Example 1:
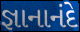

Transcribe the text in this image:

જ્ઞાનાનંદે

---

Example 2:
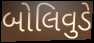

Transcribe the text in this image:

બોલિવુડે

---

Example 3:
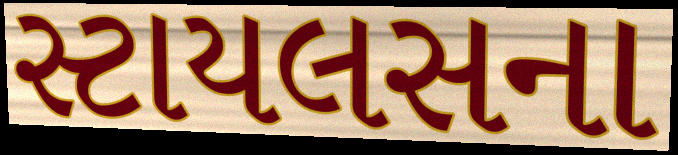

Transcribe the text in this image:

સ્ટાયલસના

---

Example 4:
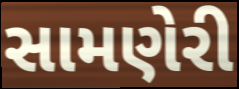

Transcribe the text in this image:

સામણેરી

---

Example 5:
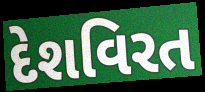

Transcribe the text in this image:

દેશવિરત